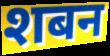
शबन